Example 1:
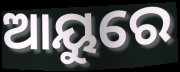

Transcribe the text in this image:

ଆୟୁରେ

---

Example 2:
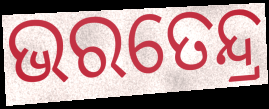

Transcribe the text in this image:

ଭରତେନ୍ଦ୍ର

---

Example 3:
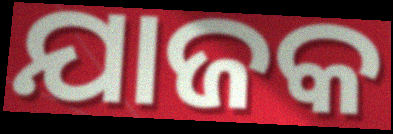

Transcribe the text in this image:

ଯାଜକ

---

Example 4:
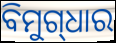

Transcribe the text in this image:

ବିମୁଗ୍‌ଧାର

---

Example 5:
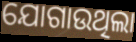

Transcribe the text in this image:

ଯୋଗାଉଥିଲା